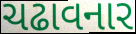
ચઢાવનાર